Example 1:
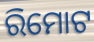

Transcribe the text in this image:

ରିମୋଟ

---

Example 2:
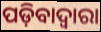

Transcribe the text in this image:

ପଡ଼ିବାଦ୍ୱାରା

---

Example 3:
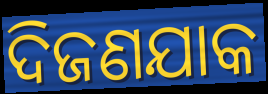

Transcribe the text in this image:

ଦିଜଣଯାକ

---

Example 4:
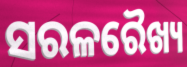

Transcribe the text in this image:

ସରଳରୈଖ୍ୟ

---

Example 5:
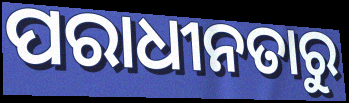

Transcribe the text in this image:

ପରାଧୀନତାରୁ